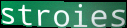
stroies